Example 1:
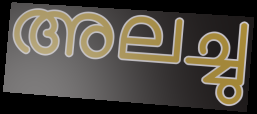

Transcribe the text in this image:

അലച്ചു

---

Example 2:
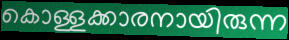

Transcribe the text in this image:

കൊള്ളക്കാരനായിരുന്ന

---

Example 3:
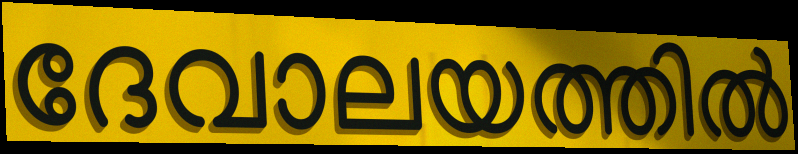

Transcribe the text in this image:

ദേവാലയത്തിൽ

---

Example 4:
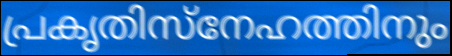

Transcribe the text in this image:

പ്രകൃതിസ്നേഹത്തിനും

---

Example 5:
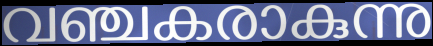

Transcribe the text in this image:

വഞ്ചകരാകുന്നു